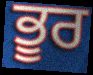
ਭੂਰ